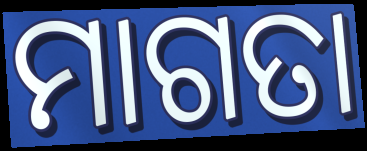
ମାଗତା